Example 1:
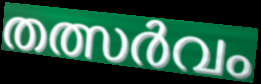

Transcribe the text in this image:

തത്സർവം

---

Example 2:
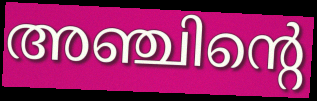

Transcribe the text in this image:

അഞ്ചിന്റെ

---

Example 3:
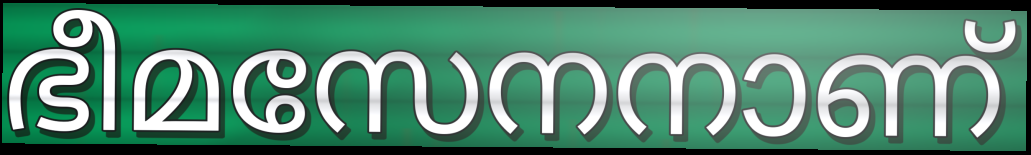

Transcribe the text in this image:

ഭീമസേനനാണ്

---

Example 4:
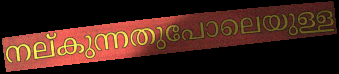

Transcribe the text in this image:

നല്കുന്നതുപോലെയുള്ള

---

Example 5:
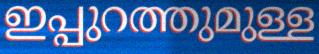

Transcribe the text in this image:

ഇപ്പുറത്തുമുള്ള